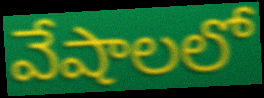
వేషాలలో